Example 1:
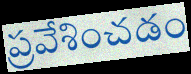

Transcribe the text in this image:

ప్రవేశించడం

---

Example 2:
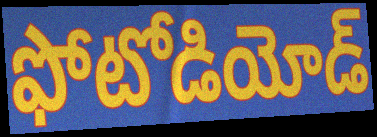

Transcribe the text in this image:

ఫోటోడియోడ్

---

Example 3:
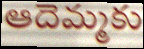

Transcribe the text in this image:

ఆదెమ్మకు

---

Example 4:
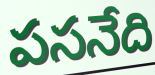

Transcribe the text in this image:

పసనేది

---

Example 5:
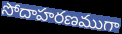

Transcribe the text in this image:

సోదాహరణముగా